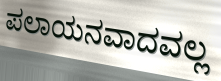
ಪಲಾಯನವಾದವಲ್ಲ